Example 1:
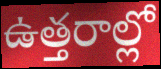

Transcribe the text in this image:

ఉత్తరాల్లో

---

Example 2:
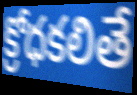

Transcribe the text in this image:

క్రోధకలితే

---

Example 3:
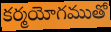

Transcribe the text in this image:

కర్మయోగముతో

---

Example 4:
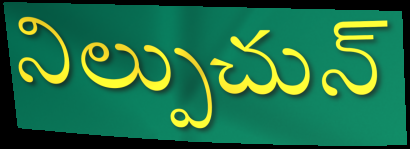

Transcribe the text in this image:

నిల్పుచున్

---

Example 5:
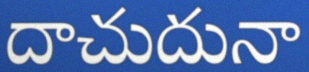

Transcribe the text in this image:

దాచుదునా